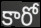
కారో